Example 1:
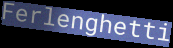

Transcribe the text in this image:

Ferlenghetti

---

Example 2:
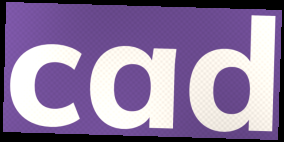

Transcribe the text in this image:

cad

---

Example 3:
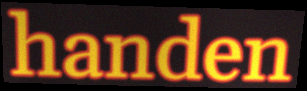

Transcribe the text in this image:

handen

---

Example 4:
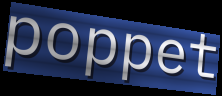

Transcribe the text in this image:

poppet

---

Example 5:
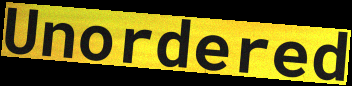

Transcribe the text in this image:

Unordered